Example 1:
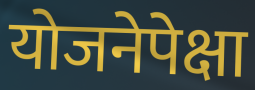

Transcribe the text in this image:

योजनेपेक्षा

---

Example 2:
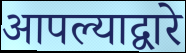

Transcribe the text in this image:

आपल्याद्वारे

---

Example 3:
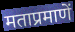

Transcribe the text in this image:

मताप्रमाणें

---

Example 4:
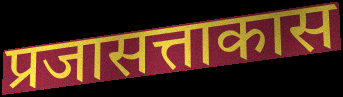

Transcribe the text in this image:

प्रजासत्ताकास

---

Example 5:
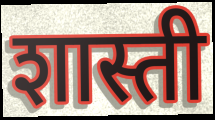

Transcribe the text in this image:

शास्ती